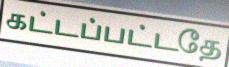
கட்டப்பட்டதே